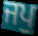
ਜਪੁ